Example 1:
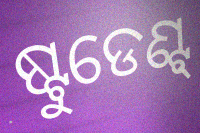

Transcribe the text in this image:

ଷ୍ଟୁଡେଣ୍ଟ୍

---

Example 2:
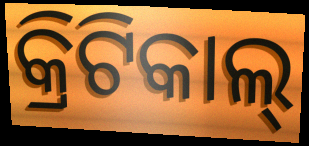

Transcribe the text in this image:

କ୍ରିଟିକାଲ୍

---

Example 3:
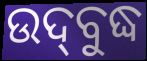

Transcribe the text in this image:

ଉଦ୍‌ବୁଦ୍ଧ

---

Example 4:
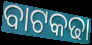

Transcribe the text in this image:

ବାଟକଢା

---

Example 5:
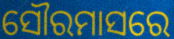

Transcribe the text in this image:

ସୌରମାସରେ